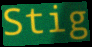
Stig